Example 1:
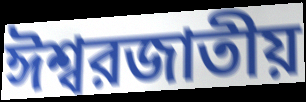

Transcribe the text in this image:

ঈশ্বরজাতীয়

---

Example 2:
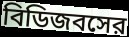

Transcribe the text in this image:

বিডিজবসের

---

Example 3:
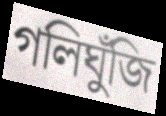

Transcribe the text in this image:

গলিঘুঁজি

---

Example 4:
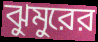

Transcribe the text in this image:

ঝুমুরের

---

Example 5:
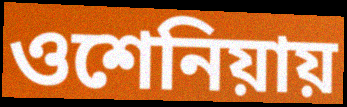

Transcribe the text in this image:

ওশেনিয়ায়